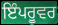
ਇੰਪਰੂਵਰ